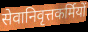
सेवानिवृत्तकर्मियों